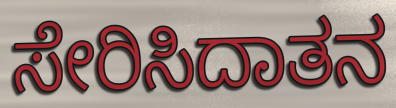
ಸೇರಿಸಿದಾತನ